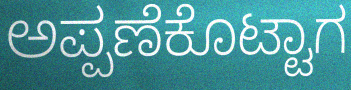
ಅಪ್ಪಣೆಕೊಟ್ಟಾಗ